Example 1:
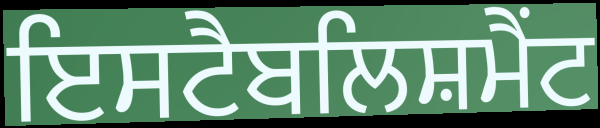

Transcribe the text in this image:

ਇਸਟੈਬਲਿਸ਼ਮੈਂਟ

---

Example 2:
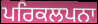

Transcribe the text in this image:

ਪਰਿਕਲਪਨਾ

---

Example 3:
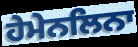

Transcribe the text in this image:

ਹੇਮੇਨਲਿਨਾ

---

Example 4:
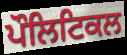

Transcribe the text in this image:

ਪੌਲਿਟਿਕਲ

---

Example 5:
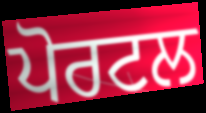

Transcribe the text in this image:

ਪੋਰਟਲ